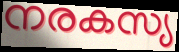
നരകസ്യ